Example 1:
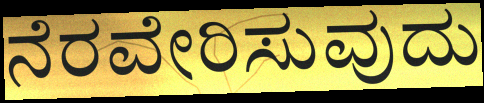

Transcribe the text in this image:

ನೆರವೇರಿಸುವುದು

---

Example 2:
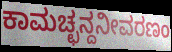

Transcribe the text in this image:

ಕಾಮಚ್ಛನ್ದನೀವರಣಂ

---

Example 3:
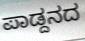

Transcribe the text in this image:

ಪಾಡ್ದನದ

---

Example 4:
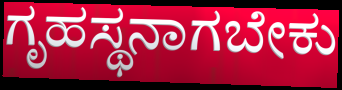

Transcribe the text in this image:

ಗೃಹಸ್ಥನಾಗಬೇಕು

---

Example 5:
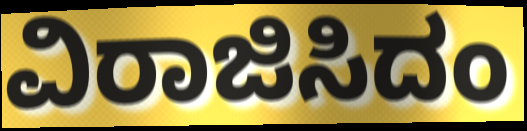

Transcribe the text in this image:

ವಿರಾಜಿಸಿದಂ